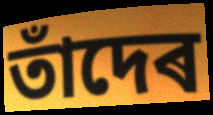
তাঁদেৰ